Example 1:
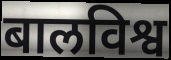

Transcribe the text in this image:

बालविश्व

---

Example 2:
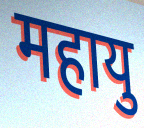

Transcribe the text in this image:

महायु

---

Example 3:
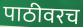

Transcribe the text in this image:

पाठीवरच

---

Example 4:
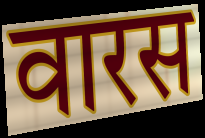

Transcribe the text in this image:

वारस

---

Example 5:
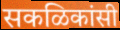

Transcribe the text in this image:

सकळिकांसी